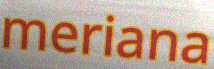
meriana